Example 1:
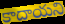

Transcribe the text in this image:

కాదాయని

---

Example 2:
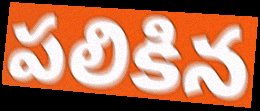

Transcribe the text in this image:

పలికిన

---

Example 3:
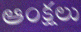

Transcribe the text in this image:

ఆంక్షలు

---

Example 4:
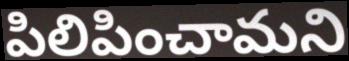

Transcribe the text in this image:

పిలిపించామని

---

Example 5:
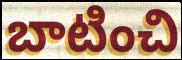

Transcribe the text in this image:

బాటించి